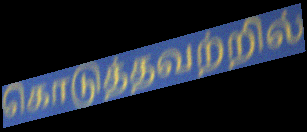
கொடுத்தவற்றில்